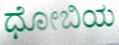
ಧೋಬಿಯ